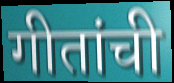
गीतांची